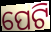
ପେଟି